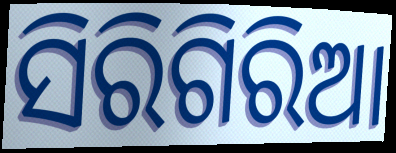
ସିରିଗିରିଆ